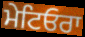
ਮੇਟਿਓਰਾ